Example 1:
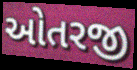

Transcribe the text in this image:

ઓતરજી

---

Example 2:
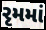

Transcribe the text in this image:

રૃમમાં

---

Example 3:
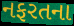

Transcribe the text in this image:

નફરતના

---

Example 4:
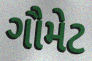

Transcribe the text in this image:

ગૌમેટ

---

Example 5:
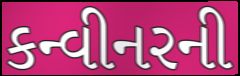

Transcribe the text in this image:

કન્વીનરની